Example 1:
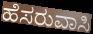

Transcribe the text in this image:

ಹೆಸರುವಾಸಿ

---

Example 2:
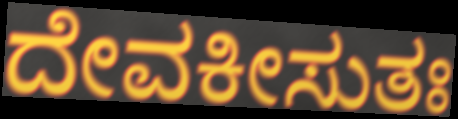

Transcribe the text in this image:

ದೇವಕೀಸುತಃ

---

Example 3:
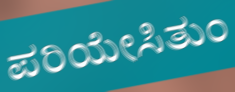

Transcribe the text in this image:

ಪರಿಯೇಸಿತುಂ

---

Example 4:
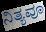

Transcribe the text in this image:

ನಿತ್ಯವೂ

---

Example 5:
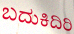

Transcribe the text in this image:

ಬದುಕಿದಿರಿ